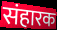
संहारक